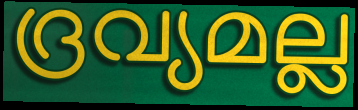
ദ്രവ്യമല്ല